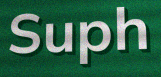
Suph